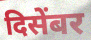
दिसेंबर